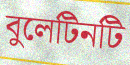
বুলেটিনটি